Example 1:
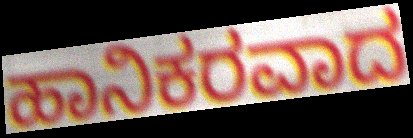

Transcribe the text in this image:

ಹಾನಿಕರವಾದ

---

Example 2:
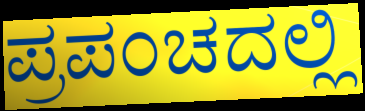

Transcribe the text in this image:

ಪ್ರಪಂಚದಲ್ಲಿ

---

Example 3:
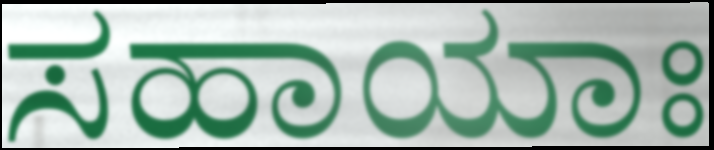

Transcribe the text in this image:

ಸಹಾಯಾಃ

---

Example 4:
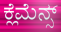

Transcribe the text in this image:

ಕ್ಲೆಮೆನ್ಸ್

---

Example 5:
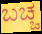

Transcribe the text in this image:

ಬಚ್ಚ